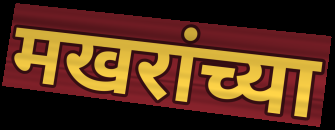
मखरांच्या